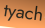
tyach